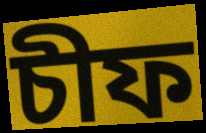
চীফ